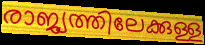
രാജ്യത്തിലേക്കുള്ള